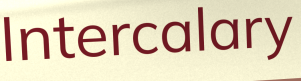
Intercalary